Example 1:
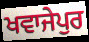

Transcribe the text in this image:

ਖਵਾਜੇਪੁਰ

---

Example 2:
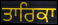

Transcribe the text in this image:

ਤਾਰਿਕਾ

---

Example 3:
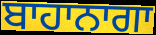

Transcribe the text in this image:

ਬਾਹਾਨਾਗਾ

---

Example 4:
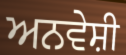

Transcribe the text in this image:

ਅਨਵੇਸ਼ੀ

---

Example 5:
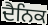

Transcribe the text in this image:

ਦੈਨਿਕ